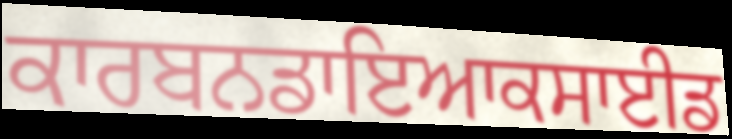
ਕਾਰਬਨਡਾਇਆਕਸਾਈਡ